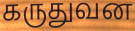
கருதுவன